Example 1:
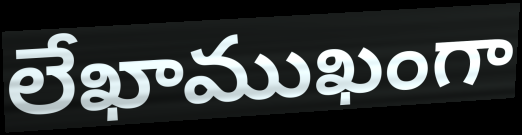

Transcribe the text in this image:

లేఖాముఖంగా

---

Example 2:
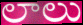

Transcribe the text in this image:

లాలు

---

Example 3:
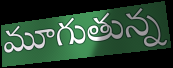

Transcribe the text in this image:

మూగుతున్న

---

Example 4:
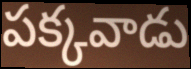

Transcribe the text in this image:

పక్కవాడు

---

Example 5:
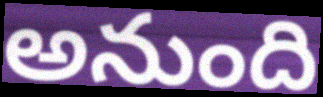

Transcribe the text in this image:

అనుంది